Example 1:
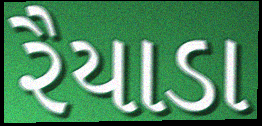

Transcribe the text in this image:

રૈયાડા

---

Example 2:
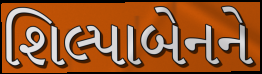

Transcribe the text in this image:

શિલ્પાબેનને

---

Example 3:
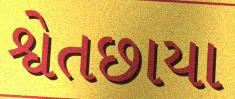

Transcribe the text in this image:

શ્વેતછાયા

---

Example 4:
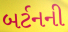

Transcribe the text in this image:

બર્ટનની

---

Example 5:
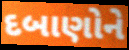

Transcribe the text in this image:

દબાણોને